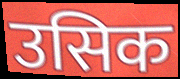
उसिक